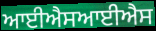
ਆਈਐਸਆਈਐਸ